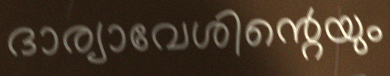
ദാര്യാവേശിന്റെയും